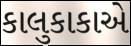
કાલુકાકાએ